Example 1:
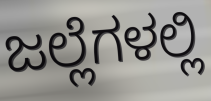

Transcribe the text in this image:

ಜಲ್ಲೆಗಳಲ್ಲಿ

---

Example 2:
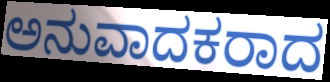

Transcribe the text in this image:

ಅನುವಾದಕರಾದ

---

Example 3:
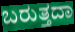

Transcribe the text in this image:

ಬರುತ್ತದಾ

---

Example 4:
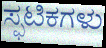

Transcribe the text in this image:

ಸ್ಫಟಿಕಗಳು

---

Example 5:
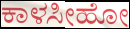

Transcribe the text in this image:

ಕಾಳಸೀಹೋ